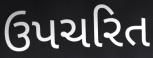
ઉપચરિત